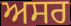
ਅਸਰ